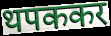
थपककर